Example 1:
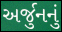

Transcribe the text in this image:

અર્જુનનું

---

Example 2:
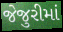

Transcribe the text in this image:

જેજુરીમાં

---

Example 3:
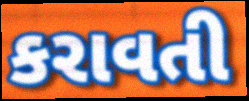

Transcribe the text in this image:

કરાવતી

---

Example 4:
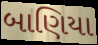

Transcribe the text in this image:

બાણિયા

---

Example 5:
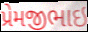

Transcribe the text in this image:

પ્રેમજીભાઇ